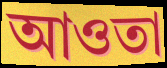
আওতা